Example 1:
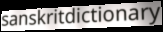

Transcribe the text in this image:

sanskritdictionary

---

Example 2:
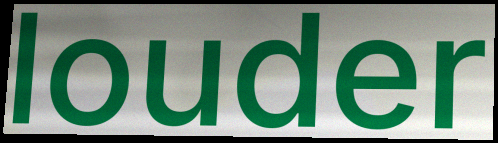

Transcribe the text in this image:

louder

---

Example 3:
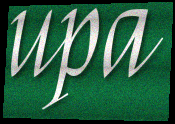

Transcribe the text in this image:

upa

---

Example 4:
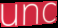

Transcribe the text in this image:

unc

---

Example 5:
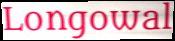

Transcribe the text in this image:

Longowal